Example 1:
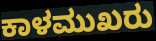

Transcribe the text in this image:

ಕಾಳಮುಖರು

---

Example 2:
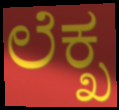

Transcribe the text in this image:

ಲೆಕ್ಖ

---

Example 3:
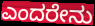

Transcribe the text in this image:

ಎಂದರೇನು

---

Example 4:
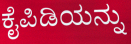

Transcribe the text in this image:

ಕೈಪಿಡಿಯನ್ನು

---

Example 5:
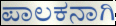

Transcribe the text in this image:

ಪಾಲಕನಾಗಿ